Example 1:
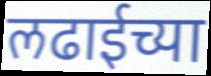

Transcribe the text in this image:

लढाईच्या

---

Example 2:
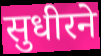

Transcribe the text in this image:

सुधीरने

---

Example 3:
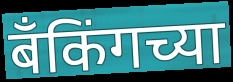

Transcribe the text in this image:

बँकिंगच्या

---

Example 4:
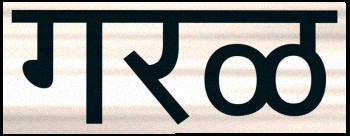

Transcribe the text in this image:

गरळ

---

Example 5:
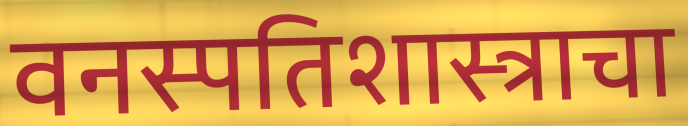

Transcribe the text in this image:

वनस्पतिशास्त्राचा